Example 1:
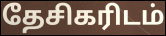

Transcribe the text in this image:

தேசிகரிடம்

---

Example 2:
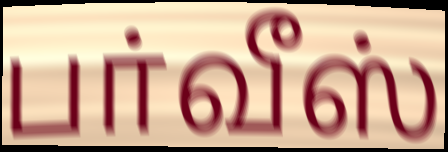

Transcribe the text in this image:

பர்வீஸ்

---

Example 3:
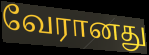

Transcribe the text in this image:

வேரானது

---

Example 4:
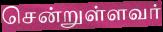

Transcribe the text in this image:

சென்றுள்ளவர்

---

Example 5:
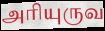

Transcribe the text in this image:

அரியுருவ